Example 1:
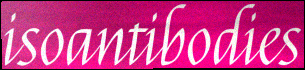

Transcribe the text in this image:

isoantibodies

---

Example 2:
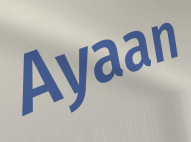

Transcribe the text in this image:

Ayaan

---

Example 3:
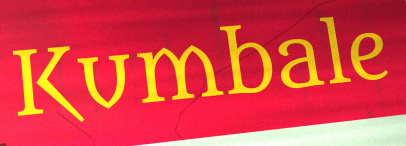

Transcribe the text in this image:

Kumbale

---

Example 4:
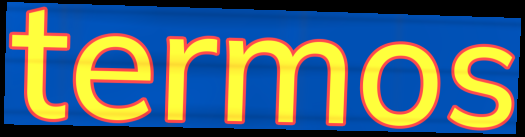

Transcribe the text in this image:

termos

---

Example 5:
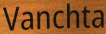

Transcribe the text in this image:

Vanchta